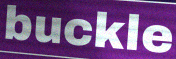
buckle